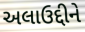
અલાઉદ્દીને